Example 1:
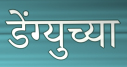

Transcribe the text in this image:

डेंग्युच्या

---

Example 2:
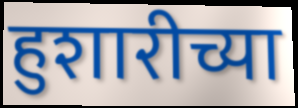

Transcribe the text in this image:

हुशारीच्या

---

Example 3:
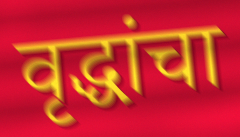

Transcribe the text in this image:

वृद्धांचा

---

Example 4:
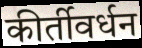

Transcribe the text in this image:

कीर्तीवर्धन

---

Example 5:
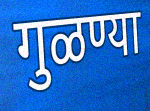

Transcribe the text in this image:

गुळण्या